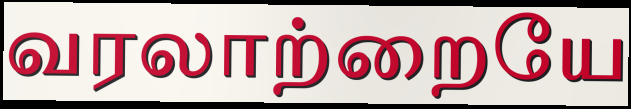
வரலாற்றையே